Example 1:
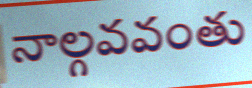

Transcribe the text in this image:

నాల్గవవంతు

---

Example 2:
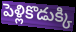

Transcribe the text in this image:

పెళ్లికొడుక్కి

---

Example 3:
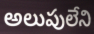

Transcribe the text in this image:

అలుపులేని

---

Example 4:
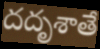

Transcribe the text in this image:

దదృశాతే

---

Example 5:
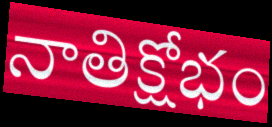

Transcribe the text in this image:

నాతిక్షోభం